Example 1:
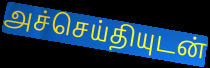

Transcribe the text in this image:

அச்செய்தியுடன்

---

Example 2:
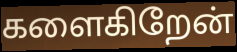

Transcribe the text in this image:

களைகிறேன்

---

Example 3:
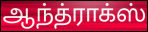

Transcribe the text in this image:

ஆந்த்ராக்ஸ்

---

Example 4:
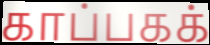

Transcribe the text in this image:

காப்பகக்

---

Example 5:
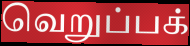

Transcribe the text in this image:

வெறுப்பக்